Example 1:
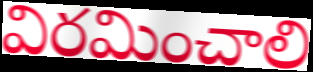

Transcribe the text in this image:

విరమించాలి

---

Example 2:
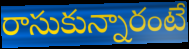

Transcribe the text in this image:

రాసుకున్నారంటే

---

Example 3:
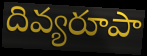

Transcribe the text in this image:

దివ్యరూపా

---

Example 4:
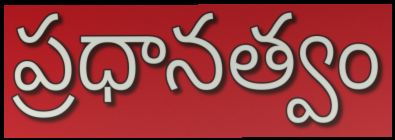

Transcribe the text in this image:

ప్రధానత్వం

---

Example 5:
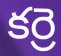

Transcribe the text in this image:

కర్రె